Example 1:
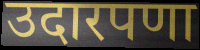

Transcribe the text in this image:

उदारपणा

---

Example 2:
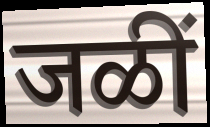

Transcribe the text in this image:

जळीं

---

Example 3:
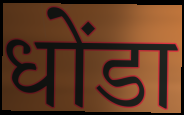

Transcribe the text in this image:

धोंडा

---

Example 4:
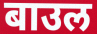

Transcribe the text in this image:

बाउल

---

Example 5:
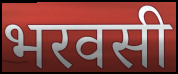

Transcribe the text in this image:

भरवसी